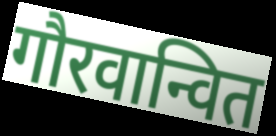
गौरवान्वित